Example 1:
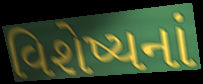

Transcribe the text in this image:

વિશેષ્યનાં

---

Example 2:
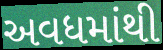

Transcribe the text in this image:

અવધમાંથી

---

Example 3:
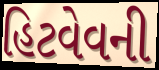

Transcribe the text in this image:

હિટવેવની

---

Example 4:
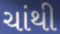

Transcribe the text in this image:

ચાંથી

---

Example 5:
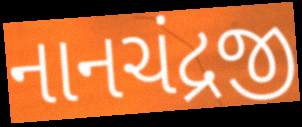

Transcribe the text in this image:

નાનચંદ્રજી